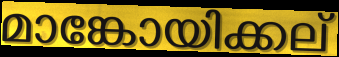
മാങ്കോയിക്കല്